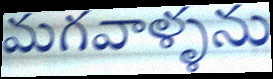
మగవాళ్ళను